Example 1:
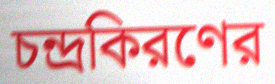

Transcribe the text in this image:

চন্দ্রকিরণের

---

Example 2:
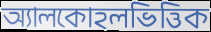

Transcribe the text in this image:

অ্যালকোহলভিত্তিক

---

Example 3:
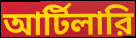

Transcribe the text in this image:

আর্টিলারি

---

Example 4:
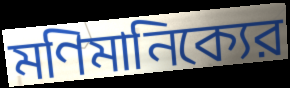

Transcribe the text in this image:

মণিমানিক্যের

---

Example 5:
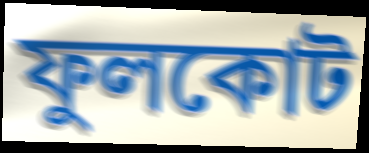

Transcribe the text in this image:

ফুলকোট